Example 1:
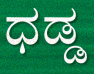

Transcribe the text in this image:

ಧಡ್ಡ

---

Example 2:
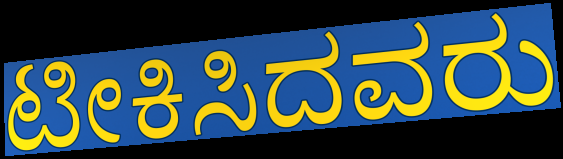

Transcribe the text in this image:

ಟೀಕಿಸಿದವರು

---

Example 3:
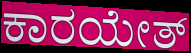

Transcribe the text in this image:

ಕಾರಯೇತ್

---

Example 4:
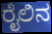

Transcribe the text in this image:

ರೈಲಿನ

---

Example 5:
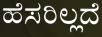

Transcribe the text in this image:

ಹೆಸರಿಲ್ಲದೆ